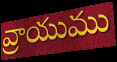
వ్రాయుము